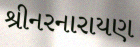
શ્રીનરનારાયણ